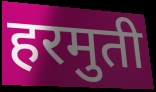
हरमुती